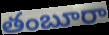
తంబూరా